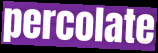
percolate